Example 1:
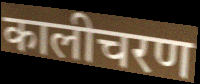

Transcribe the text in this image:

कालीचरण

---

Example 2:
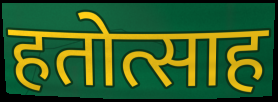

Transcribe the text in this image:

हतोत्साह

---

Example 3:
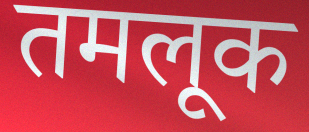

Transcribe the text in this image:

तमलूक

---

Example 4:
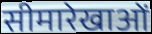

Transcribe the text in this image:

सीमारेखाओं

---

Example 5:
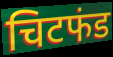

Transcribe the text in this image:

चिटफंड